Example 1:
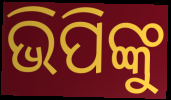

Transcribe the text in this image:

ଭିପିଙ୍କୁ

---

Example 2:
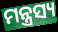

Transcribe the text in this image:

ମନ୍ତ୍ରସ୍ୟ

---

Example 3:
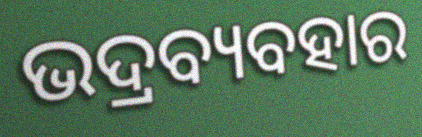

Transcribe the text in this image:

ଭଦ୍ରବ୍ୟବହାର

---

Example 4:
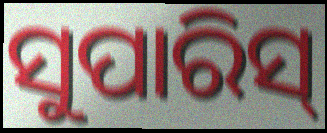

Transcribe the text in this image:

ସୁପାରିସ୍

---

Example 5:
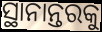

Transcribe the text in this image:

ସ୍ଥାନାନ୍ତରକୁ